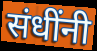
संधींनी